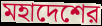
মহাদেশের